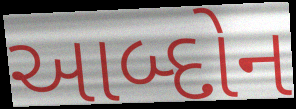
આબ્દોન